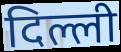
दिल्‍ली